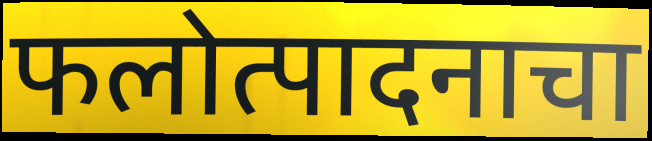
फलोत्पादनाचा